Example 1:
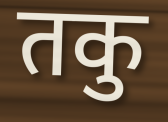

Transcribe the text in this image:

तकु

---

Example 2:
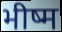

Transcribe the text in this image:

भीष्म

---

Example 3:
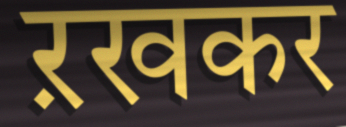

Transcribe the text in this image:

ऱखकर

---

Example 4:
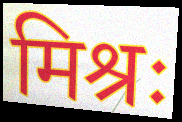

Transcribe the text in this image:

मिश्रः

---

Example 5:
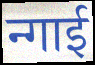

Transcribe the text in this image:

न्गाई